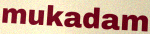
mukadam